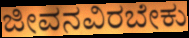
ಜೀವನವಿರಬೇಕು